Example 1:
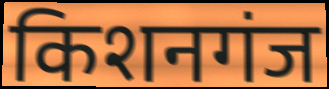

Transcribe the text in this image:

किशनगंज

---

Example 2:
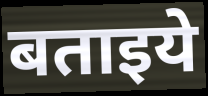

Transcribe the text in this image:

बताइये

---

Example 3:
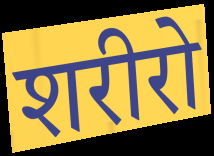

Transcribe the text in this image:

शरीरो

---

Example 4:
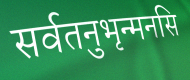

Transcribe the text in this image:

सर्वतनुभृन्मनसि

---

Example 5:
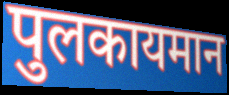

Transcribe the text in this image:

पुलकायमान